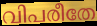
വിപരീതേ